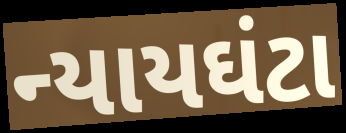
ન્યાયઘંટા